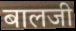
बालजी